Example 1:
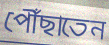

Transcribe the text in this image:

পৌঁছাতেন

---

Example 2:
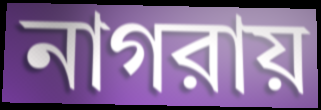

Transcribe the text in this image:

নাগরায়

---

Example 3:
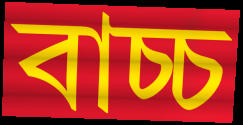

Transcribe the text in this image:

বাচ্চ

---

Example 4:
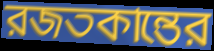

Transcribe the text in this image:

রজতকান্তের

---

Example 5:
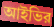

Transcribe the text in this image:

আইভির